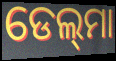
ଡେଲ୍‍ମା